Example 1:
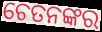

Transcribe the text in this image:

ଚେତନଙ୍କର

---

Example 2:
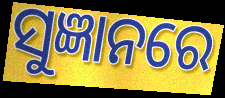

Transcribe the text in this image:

ସୁଜ୍ଞାନରେ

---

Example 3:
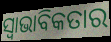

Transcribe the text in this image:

ସ୍ୱାଭାବିକତାର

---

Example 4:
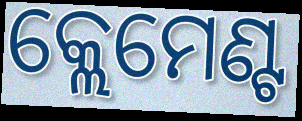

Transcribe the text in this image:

କ୍ଲେମେଣ୍ଟ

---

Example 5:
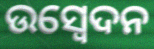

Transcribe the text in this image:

ଉସ୍ୱେଦନ